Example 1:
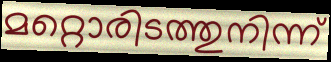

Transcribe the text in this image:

മറ്റൊരിടത്തുനിന്ന്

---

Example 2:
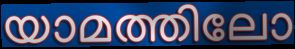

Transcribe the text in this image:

യാമത്തിലോ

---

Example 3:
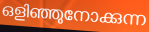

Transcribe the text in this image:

ഒളിഞ്ഞുനോക്കുന്ന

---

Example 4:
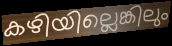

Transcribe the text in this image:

കഴിയില്ലെങ്കിലും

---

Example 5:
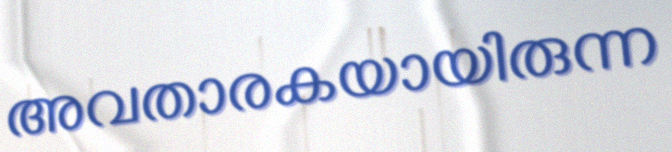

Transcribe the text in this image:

അവതാരകയായിരുന്ന